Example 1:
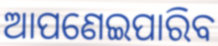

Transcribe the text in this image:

ଆପଣେଇପାରିବ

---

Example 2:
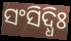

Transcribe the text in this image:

ସଂସିଦ୍ଧିଃ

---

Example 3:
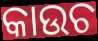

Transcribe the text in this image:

କାଉଚ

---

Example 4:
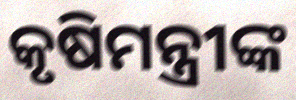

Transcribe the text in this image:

କୃଷିମନ୍ତ୍ରୀଙ୍କ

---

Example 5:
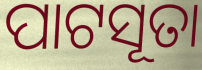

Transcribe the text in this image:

ପାଟସୂତା